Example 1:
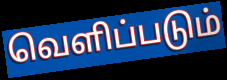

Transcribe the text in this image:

வெளிப்படும்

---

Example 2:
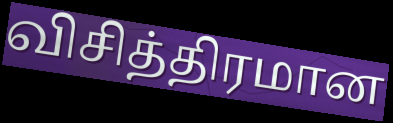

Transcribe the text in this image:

விசித்திரமான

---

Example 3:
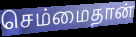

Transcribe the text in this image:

செம்மைதான்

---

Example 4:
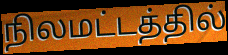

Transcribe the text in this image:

நிலமட்டத்தில்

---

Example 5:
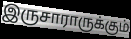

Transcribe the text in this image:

இருசாராருக்கும்